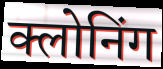
क्‍लोनिंग